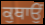
ਕੁਥਾਉਂ